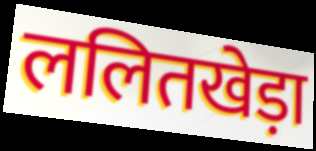
ललितखेड़ा